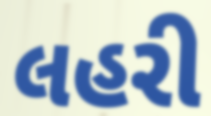
લહરી